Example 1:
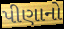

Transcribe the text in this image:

પીણાનો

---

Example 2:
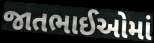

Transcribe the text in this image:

જાતભાઈઓમાં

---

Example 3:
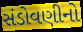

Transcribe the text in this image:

સંડોવણીનો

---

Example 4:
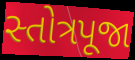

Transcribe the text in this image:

સ્તોત્રપૂજા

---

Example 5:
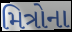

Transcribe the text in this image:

મિત્રોના